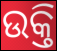
ଉକ୍ତି